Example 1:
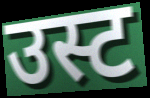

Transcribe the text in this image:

उस्ट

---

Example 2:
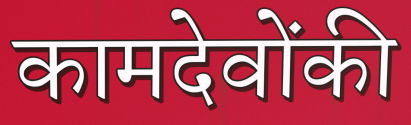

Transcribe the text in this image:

कामदेवोंकी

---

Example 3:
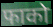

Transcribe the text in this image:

फाको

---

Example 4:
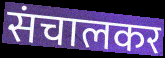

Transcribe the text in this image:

संचालकर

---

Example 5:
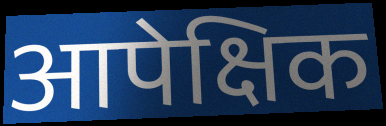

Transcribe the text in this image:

आपेक्षिक